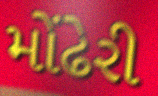
મોંઢેરી